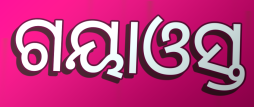
ଗୟାଓସ୍ତ